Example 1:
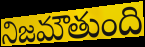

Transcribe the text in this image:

నిజమౌతుంది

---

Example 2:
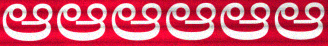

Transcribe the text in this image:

ఆఆఆఆఆఆ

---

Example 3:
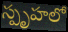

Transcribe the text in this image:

స్పృహలో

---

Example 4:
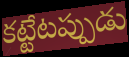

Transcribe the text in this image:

కట్టేటప్పుడు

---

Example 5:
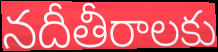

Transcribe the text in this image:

నదీతీరాలకు